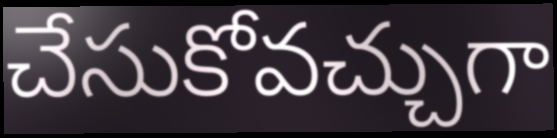
చేసుకోవచ్చుగా